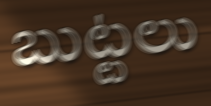
బుట్టలు